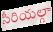
సీరియల్గా